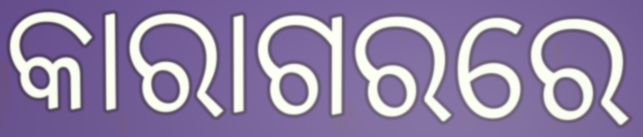
କାରାଗରରେ